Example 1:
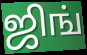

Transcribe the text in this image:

ஜிங்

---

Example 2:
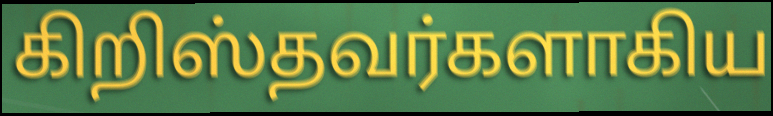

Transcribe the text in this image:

கிறிஸ்தவர்களாகிய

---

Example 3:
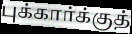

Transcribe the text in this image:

புக்கார்க்குத்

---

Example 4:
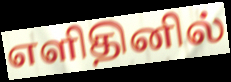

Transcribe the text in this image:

எளிதினில்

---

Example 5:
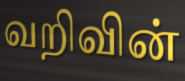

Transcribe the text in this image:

வறிவின்